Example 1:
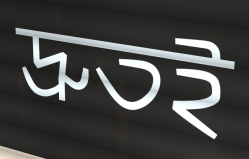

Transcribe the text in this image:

দ্রুতই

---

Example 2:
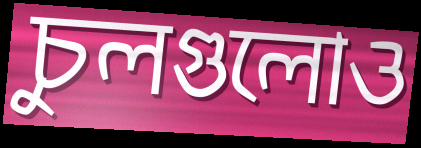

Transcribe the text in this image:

চুলগুলোও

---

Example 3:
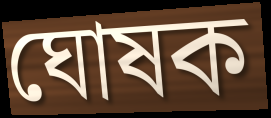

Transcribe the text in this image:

ঘোষক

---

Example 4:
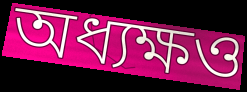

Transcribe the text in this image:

অধ্যক্ষও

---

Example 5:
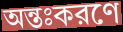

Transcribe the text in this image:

অন্তঃকরণে